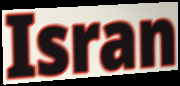
Isran